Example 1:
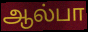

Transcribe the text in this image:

ஆல்பா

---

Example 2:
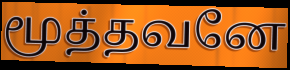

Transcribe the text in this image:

மூத்தவனே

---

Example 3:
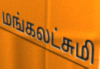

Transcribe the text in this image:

மங்கலட்சுமி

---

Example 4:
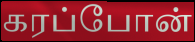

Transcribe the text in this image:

கரப்போன்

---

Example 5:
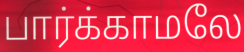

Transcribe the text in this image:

பார்க்காமலே